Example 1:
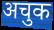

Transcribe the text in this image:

अचुक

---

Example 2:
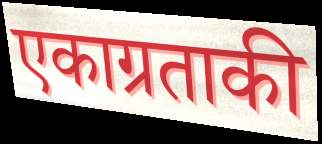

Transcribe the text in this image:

एकाग्रताकी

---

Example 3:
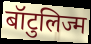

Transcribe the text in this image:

बॉटुलिज्म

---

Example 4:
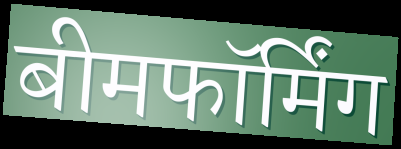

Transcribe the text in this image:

बीमफॉर्मिंग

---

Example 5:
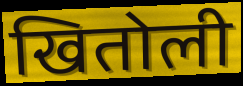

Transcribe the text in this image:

खितोली